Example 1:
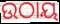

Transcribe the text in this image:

ଉଠାୟ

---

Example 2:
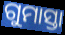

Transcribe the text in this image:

ଗୁମାସ୍ତା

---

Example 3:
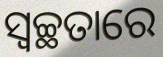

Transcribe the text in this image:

ସ୍ବଚ୍ଛତାରେ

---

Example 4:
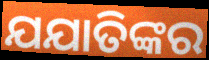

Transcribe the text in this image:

ଯଯାତିଙ୍କର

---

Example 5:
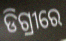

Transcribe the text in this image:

ଡିଗ୍ରୀରେ